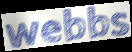
webbs